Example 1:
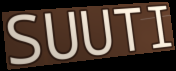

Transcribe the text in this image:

SUUTI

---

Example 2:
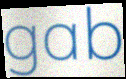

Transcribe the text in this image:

gab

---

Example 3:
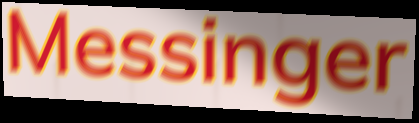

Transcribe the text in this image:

Messinger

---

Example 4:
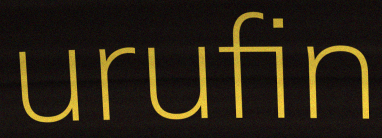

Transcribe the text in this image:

urufin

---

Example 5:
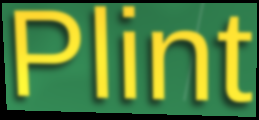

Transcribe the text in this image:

Plint